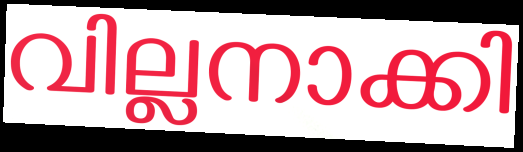
വില്ലനാക്കി